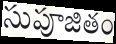
సుపూజితం